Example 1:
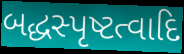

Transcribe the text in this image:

બદ્ધસ્પૃષ્ટત્વાદિ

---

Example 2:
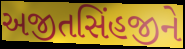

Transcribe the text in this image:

અજીતસિંહજીને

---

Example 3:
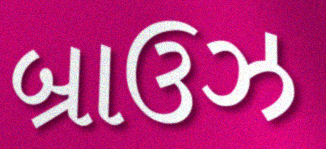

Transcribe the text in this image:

બ્રાઉઝ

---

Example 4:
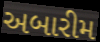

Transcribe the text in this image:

અબારીમ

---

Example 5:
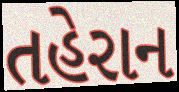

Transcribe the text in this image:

તહેરાન